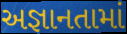
અજ્ઞાનતામાં